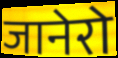
जानेरो